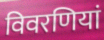
विवरणियां